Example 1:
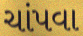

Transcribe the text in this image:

ચાંપવા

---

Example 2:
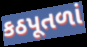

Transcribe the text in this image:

કઠપૂતળાં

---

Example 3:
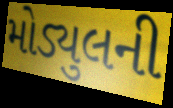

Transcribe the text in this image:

મોડ્યુલની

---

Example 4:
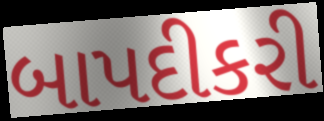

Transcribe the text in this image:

બાપદીકરી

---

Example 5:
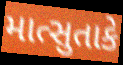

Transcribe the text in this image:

માત્સુતાકે